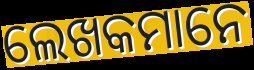
ଲେଖକମାନେ